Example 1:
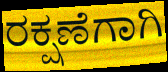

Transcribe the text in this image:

ರಕ್ಷಣೆಗಾಗಿ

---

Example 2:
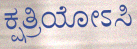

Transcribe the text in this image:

ಕ್ಷತ್ರಿಯೋಽಸಿ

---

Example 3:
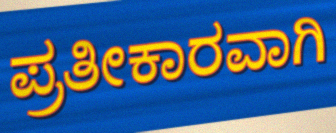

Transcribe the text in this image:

ಪ್ರತೀಕಾರವಾಗಿ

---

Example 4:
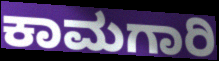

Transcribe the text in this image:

ಕಾಮಗಾರಿ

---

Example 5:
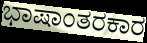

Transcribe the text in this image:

ಭಾಷಾಂತರಕಾರ